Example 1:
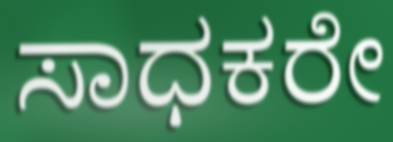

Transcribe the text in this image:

ಸಾಧಕರೇ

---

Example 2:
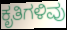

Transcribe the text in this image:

ಕೃತಿಗಳಿವು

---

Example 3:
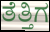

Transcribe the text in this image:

ತೆತ್ತಿಗ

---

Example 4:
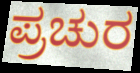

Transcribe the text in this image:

ಪ್ರಚುರ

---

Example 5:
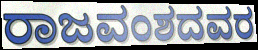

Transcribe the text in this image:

ರಾಜವಂಶದವರ